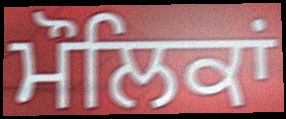
ਮੌਲਿਕਾਂ